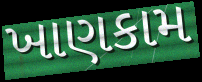
ખાણકામ